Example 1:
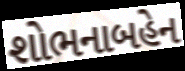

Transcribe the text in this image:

શોભનાબહેન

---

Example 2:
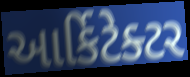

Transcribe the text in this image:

આર્કિટેક્ટર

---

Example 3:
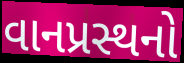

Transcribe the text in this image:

વાનપ્રસ્થનો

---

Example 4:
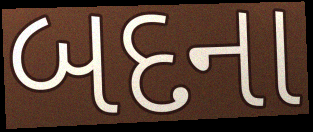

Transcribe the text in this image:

બદના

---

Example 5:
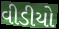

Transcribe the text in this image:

વીડીયો